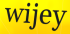
wijey